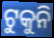
ଟୁକୁନି